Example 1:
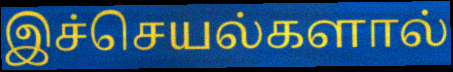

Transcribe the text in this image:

இச்செயல்களால்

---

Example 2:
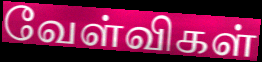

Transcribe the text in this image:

வேள்விகள்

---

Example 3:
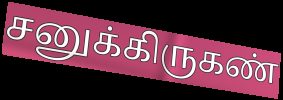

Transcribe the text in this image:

சனுக்கிருகண்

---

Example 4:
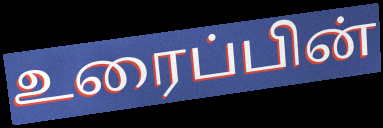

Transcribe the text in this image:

உரைப்பின்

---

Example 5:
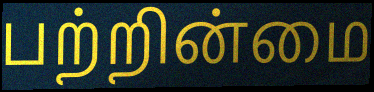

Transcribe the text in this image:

பற்றின்மை